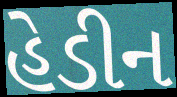
હેડીન